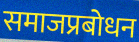
समाजप्रबोधन